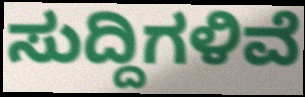
ಸುದ್ದಿಗಳಿವೆ